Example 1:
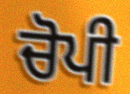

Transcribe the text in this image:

ਚੋਪੀ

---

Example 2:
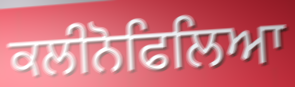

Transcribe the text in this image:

ਕਲੀਨੋਫਿਲਿਆ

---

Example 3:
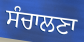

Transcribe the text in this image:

ਸੰਚਾਲਣਾ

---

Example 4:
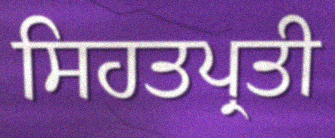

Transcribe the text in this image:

ਸਿਹਤਪ੍ਰਤੀ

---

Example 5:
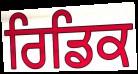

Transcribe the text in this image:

ਰਿਡਿਕ